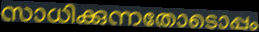
സാധിക്കുന്നതോടൊപ്പം